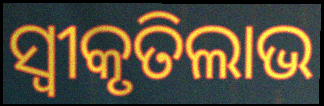
ସ୍ଵୀକୃତିଲାଭ